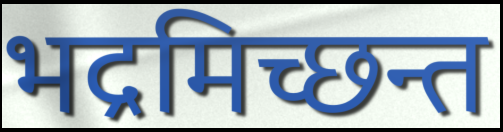
भद्रमिच्छन्त